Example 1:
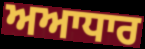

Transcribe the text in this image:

ਅਆਧਾਰ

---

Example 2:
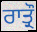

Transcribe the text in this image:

ਰਾਤ੍ਰੌ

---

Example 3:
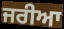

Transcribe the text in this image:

ਜਰੀਆ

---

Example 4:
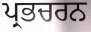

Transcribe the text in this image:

ਪ੍ਰਭਚਰਨ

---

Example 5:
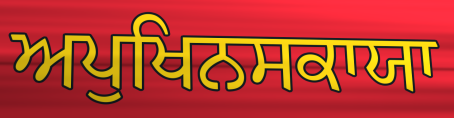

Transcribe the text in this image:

ਅਪੁਖਿਨਸਕਾਯਾ